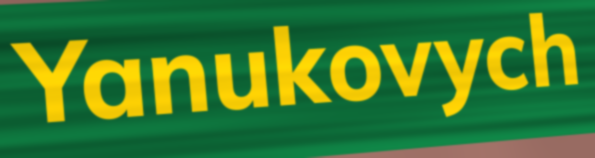
Yanukovych